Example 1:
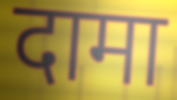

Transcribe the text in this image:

दामा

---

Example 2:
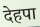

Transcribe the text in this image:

देहपा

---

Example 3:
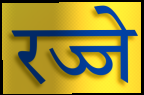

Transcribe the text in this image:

रज्जे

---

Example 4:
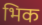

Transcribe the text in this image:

भिक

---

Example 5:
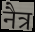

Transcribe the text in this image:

नैत्र